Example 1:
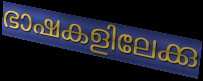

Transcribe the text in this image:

ഭാഷകളിലേക്കു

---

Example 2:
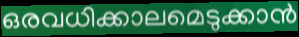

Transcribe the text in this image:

ഒരവധിക്കാലമെടുക്കാൻ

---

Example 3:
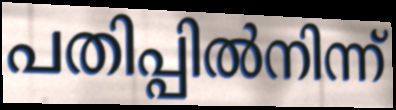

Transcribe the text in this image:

പതിപ്പിൽനിന്ന്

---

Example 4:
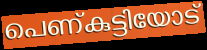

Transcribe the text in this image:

പെണ്കുട്ടിയോട്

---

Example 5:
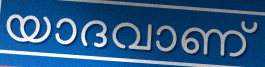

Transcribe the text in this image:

യാദവാണ്